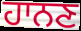
ਹਾਨਣ